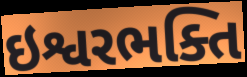
ઇશ્વરભક્તિ